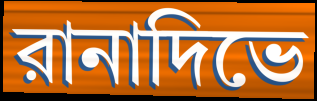
রানাদিভে